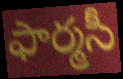
ఫార్మసీ